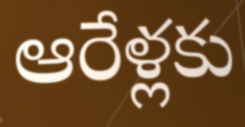
ఆరేళ్లకు